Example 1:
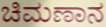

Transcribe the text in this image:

ಚಿಮಣಾನ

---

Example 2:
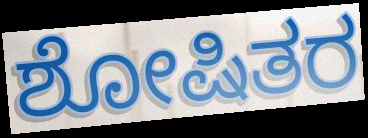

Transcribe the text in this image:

ಶೋಷಿತರ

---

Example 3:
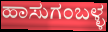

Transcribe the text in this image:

ಹಾಸುಗಂಬಳ್ಳ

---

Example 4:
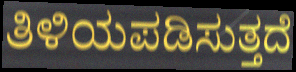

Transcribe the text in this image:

ತಿಳಿಯಪಡಿಸುತ್ತದೆ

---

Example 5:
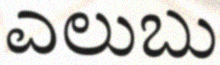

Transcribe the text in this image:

ಎಲುಬು